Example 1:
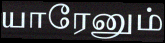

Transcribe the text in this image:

யாரேனும்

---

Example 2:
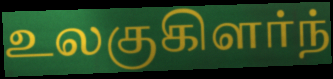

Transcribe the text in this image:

உலகுகிளர்ந்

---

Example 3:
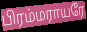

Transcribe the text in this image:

பிரம்மராயரே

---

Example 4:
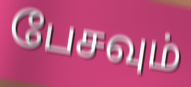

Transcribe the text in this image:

பேசவும்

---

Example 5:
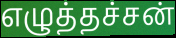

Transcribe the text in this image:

எழுத்தச்சன்